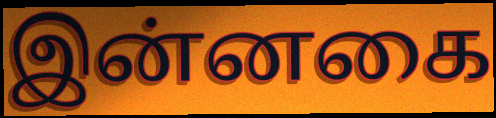
இன்னகை